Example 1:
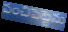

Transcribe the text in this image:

పంచిపెట్టెను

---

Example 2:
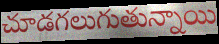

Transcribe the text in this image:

చూడగలుగుతున్నాయి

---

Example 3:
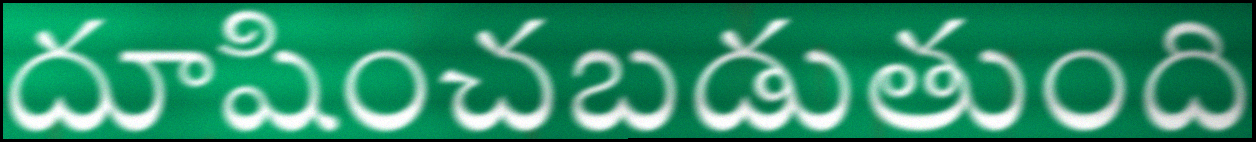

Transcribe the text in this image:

దూషించబడుతుంది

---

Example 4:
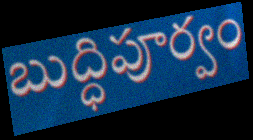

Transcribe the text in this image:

బుద్ధిపూర్వం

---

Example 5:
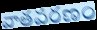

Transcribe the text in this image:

వాతవరణం